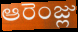
ఆరెంజ్లు